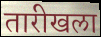
तारीखला